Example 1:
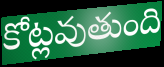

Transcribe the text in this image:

కోట్లవుతుంది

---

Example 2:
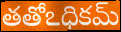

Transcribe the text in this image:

తతోఽధికమ్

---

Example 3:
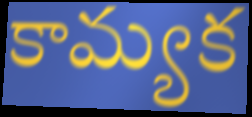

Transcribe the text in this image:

కామ్యక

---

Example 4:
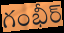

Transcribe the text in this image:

గంభీర్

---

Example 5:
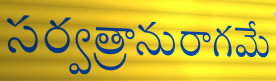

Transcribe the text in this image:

సర్వత్రానురాగమే